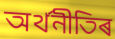
অৰ্থনীতিৰ